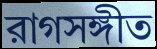
রাগসঙ্গীত